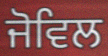
ਜੋਵਿਲ